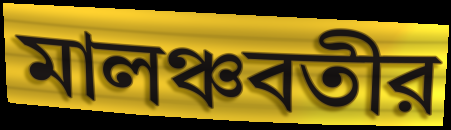
মালঞ্চবতীর